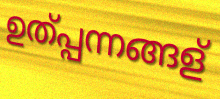
ഉത്പ്പന്നങ്ങള്